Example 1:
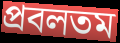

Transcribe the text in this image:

প্রবলতম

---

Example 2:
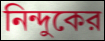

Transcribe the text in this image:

নিন্দুকের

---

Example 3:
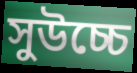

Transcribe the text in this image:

সুউচ্চে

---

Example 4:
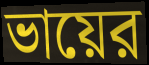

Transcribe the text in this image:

ভায়ের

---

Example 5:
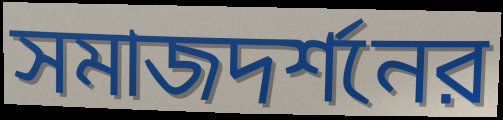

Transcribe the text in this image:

সমাজদর্শনের